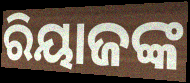
ରିୟାଜଙ୍କ